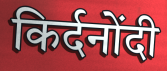
किर्दनोंदी